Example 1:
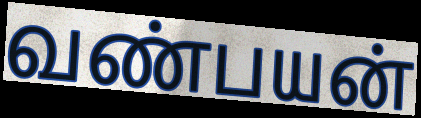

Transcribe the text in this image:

வண்பயன்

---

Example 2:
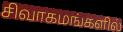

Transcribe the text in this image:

சிவாகமங்களில்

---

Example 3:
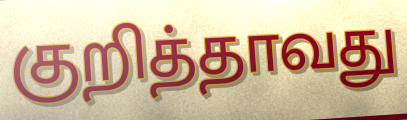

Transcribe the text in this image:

குறித்தாவது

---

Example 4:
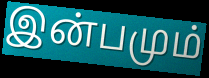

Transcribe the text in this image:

இன்பமும்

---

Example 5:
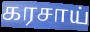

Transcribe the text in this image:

கரசாய்